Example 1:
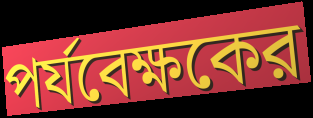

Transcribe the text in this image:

পর্যবেক্ষকের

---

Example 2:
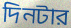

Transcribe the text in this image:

দিনটার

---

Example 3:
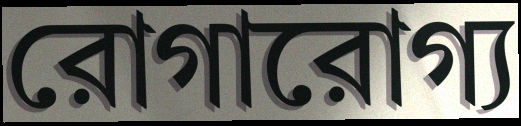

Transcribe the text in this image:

রোগারোগ্য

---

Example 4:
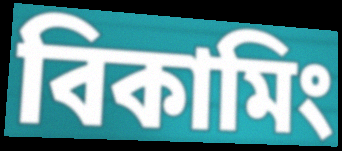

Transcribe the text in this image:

বিকামিং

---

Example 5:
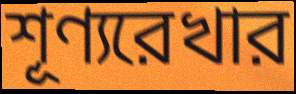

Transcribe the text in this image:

শূণ্যরেখার